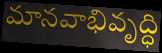
మానవాభివృద్ధి